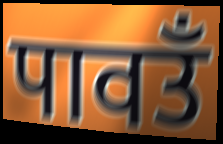
पावउँ